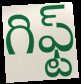
గిఫ్ట్